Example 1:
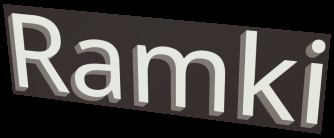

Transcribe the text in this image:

Ramki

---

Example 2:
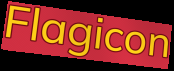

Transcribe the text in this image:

Flagicon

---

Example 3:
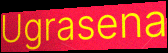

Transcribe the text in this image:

Ugrasena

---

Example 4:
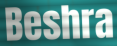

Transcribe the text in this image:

Beshra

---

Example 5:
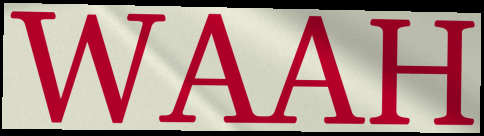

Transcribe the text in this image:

WAAH